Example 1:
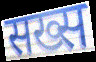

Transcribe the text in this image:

सख्स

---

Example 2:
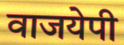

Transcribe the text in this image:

वाजयेपी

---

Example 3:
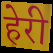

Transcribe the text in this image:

हेरी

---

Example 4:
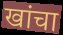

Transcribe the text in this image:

खांचा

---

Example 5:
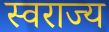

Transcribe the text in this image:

स्वराज्य